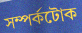
সম্পৰ্কটোক